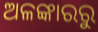
ଅଳଙ୍କାରରୁ